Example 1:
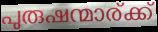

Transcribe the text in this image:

പുരുഷന്മാര്ക്ക്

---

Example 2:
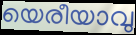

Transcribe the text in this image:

യെരീയാവു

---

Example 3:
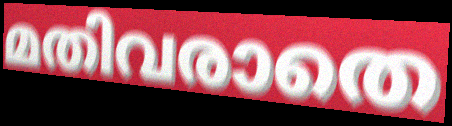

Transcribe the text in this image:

മതിവരാതെ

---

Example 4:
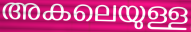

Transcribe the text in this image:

അകലെയുള്ള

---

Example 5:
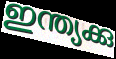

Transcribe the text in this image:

ഇന്ത്യക്കു